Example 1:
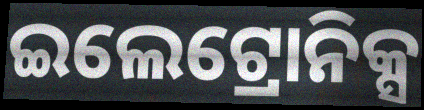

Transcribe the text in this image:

ଇଲେଟ୍ରୋନିକ୍ସ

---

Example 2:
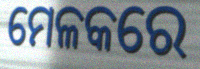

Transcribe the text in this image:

ମେଳକରେ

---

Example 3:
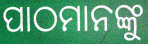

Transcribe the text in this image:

ପାଠମାନଙ୍କୁ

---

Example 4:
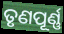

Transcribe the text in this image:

ତୃଣପୂର୍ଣ୍ଣ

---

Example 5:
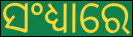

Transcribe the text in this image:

ସଂଧ୍ୟାରେ